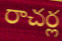
రాచర్ల